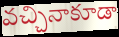
వచ్చినాకూడా